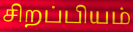
சிறப்பியம்